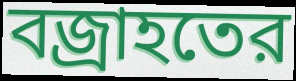
বজ্রাহতের